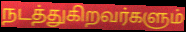
நடத்துகிறவர்களும்